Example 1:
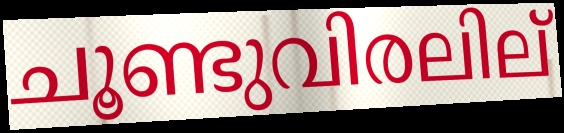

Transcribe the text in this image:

ചൂണ്ടുവിരലില്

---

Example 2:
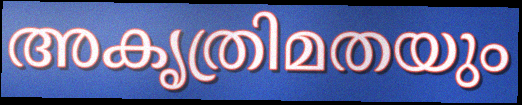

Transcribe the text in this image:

അകൃത്രിമതയും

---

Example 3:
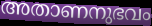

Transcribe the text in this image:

അതാണനുഭവം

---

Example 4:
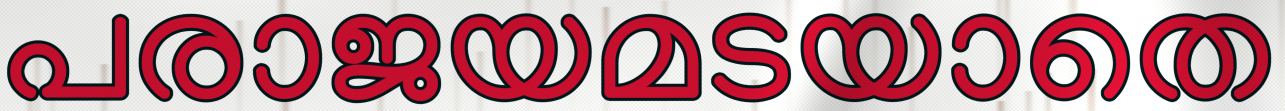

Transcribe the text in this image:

പരാജയമടയാതെ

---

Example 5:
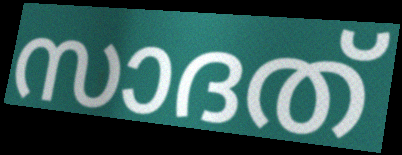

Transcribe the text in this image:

സാദത്